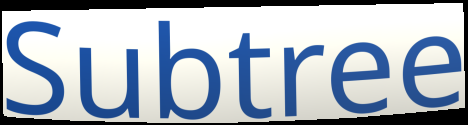
Subtree